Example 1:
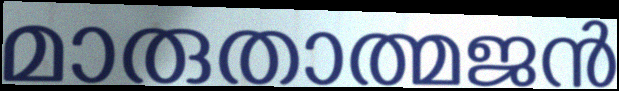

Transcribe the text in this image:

മാരുതാത്മജൻ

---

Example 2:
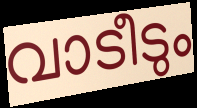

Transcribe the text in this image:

വാടീടും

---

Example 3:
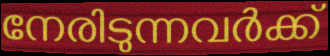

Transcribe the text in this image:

നേരിടുന്നവർക്ക്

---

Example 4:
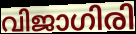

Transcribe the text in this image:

വിജാഗിരി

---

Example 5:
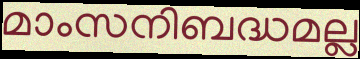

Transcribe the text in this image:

മാംസനിബദ്ധമല്ല